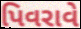
પિવરાવે